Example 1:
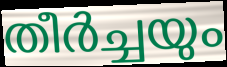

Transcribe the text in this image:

തീർച്ചയും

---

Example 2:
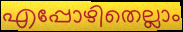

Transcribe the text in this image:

എപ്പോഴിതെല്ലാം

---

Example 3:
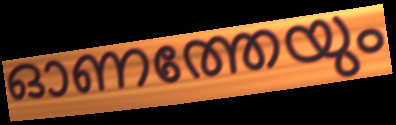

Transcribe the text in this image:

ഓണത്തേയും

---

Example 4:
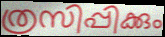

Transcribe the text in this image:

ത്രസിപ്പിക്കും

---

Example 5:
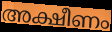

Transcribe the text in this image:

അക്ഷീണം